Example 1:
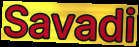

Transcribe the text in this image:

Savadi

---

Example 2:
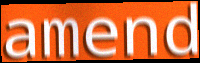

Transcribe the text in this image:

amend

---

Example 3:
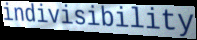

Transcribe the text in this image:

indivisibility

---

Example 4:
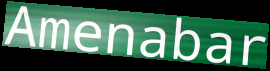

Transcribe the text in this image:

Amenabar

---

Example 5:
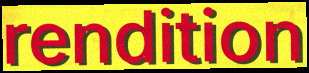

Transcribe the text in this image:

rendition